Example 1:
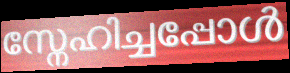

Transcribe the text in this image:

സ്നേഹിച്ചപ്പോൾ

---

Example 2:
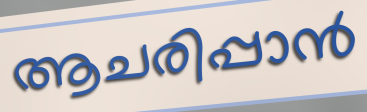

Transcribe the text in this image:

ആചരിപ്പാൻ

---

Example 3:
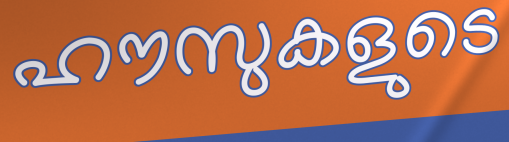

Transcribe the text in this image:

ഹൗസുകളുടെ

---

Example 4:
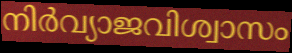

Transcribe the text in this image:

നിർവ്യാജവിശ്വാസം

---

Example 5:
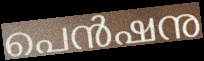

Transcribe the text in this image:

പെൻഷനു